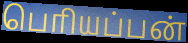
பெரியப்பன்